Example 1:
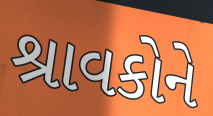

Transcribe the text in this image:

શ્રાવકોને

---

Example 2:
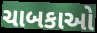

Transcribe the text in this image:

ચાબકાઓ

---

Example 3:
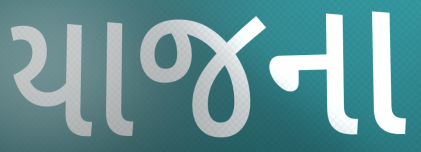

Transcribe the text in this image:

યાજના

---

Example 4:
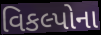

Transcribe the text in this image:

વિકલ્પોના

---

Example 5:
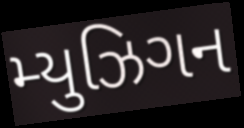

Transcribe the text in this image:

મ્યુઝિગન